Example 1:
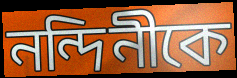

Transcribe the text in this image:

নন্দিনীকে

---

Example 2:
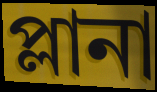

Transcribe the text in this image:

প্লানা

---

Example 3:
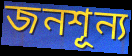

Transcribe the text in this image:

জনশূন্য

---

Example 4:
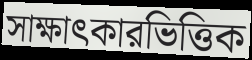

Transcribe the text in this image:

সাক্ষাৎকারভিত্তিক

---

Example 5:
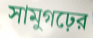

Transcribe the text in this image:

সামুগঢ়ের